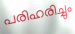
പരിഹരിച്ചും